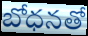
బోధనతో